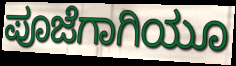
ಪೂಜೆಗಾಗಿಯೂ